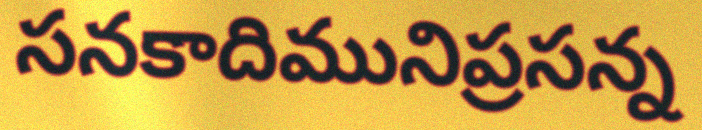
సనకాదిమునిప్రసన్న